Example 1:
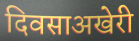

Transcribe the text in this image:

दिवसाअखेरी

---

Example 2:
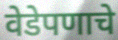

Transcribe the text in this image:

वेडेपणाचे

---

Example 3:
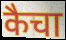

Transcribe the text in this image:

कैचा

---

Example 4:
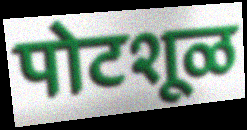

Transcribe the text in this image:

पोटशूळ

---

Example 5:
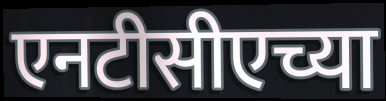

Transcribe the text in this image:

एनटीसीएच्या